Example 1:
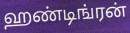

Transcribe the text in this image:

ஹண்டிங்ரன்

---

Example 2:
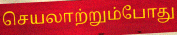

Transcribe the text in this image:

செயலாற்றும்போது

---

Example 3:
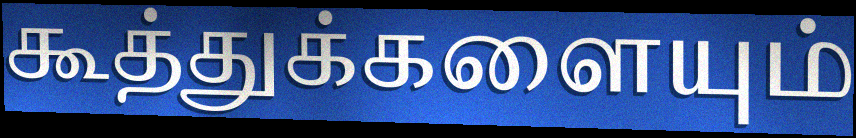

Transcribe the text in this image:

கூத்துக்களையும்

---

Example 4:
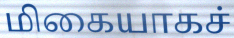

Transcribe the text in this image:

மிகையாகச்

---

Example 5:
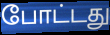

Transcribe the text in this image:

போட்டது